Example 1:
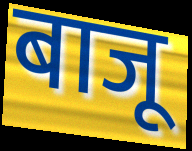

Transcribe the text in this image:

बाजू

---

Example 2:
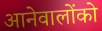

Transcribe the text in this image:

आनेवालोंको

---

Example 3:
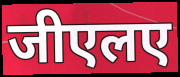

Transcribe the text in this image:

जीएलए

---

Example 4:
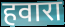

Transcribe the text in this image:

हवारा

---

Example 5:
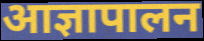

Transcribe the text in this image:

आज्ञापालन